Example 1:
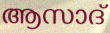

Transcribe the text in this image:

ആസാദ്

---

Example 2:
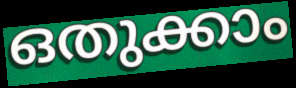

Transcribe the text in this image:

ഒതുക്കാം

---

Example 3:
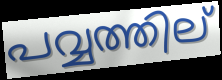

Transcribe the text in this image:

പവ്വത്തില്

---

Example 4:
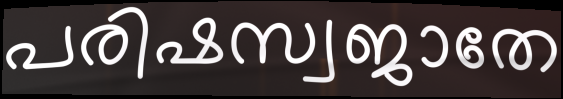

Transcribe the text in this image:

പരിഷസ്വജാതേ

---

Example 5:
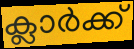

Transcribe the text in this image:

ക്ലാർക്ക്